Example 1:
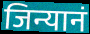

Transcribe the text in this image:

जिन्यानं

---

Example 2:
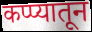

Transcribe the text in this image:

कप्प्यातून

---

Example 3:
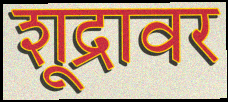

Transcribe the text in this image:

शूद्रावर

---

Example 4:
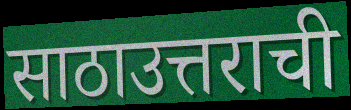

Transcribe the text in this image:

साठाउत्तराची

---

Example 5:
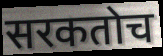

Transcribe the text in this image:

सरकतोच